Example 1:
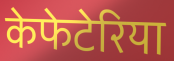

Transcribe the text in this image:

केफेटेरिया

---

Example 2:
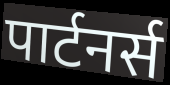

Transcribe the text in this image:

पार्टनर्स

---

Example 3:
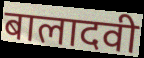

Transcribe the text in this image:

बालादवी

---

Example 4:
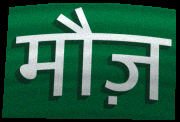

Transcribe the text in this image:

मौज़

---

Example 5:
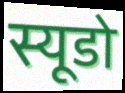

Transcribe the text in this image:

स्यूडो